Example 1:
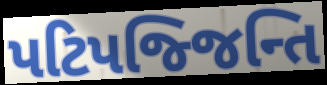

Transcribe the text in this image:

પટિપજ્જિન્તિ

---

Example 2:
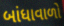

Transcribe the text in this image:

બાંધાવાળો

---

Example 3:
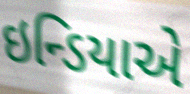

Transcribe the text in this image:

ઇન્ડિયાએ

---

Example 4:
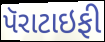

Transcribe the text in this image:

પૅરાટાઇફી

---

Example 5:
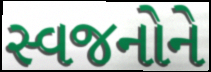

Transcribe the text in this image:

સ્વજનોને